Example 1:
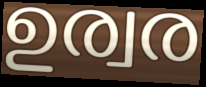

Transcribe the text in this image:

ഉര്വര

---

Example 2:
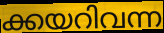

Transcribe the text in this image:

ക്കയറിവന്ന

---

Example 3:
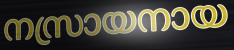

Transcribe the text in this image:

നസ്രായനായ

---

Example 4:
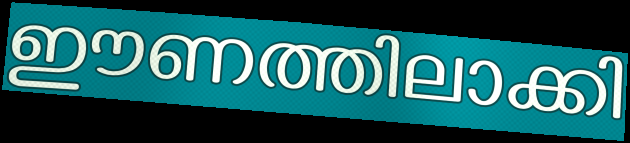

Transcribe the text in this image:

ഈണത്തിലാക്കി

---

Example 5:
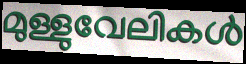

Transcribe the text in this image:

മുള്ളുവേലികൾ